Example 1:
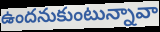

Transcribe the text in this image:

ఉందనుకుంటున్నావా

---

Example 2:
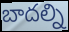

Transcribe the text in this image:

బాదల్ని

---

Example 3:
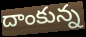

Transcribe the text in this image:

దాంకున్న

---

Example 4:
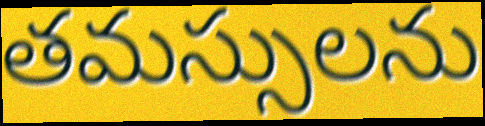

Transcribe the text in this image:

తమస్సులను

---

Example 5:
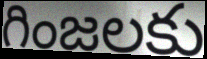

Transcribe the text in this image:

గింజలకు